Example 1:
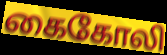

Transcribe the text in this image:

கைகோலி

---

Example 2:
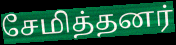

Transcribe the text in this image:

சேமித்தனர்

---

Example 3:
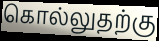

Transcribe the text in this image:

கொல்லுதற்கு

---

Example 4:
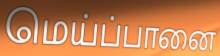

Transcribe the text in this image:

மெய்ப்பானை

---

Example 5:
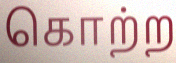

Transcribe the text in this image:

கொற்ற